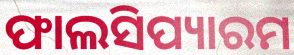
ଫାଲସିପ୍ୟାରମ